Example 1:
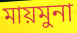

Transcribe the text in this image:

মায়মুনা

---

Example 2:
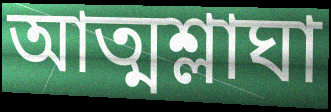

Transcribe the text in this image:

আত্মশ্লাঘা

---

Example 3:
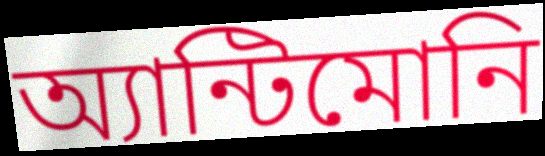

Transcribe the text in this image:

অ্যান্টিমোনি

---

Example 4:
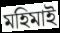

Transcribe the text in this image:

মহিমাই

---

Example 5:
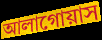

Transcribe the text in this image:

আলাগোয়াস